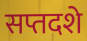
सप्तदशे